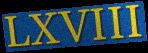
LXVIII